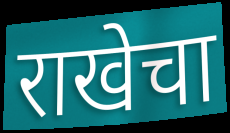
राखेचा